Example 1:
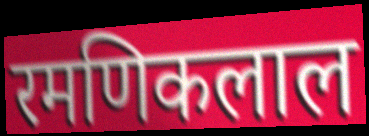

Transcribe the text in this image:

रमणिकलाल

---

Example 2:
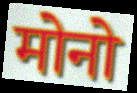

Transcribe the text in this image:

मोनो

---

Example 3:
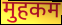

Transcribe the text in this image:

मुहकम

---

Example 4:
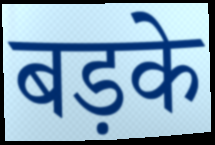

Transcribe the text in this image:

बड़के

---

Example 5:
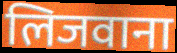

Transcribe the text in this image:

लिजवाना